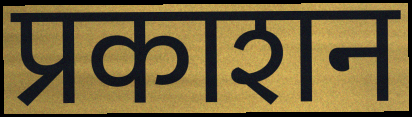
प्रकाशन